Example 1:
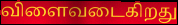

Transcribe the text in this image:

விளைவடைகிறது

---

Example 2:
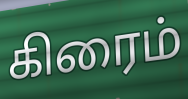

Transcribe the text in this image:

கிரைம்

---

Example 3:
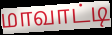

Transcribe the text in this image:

மாவாட்டி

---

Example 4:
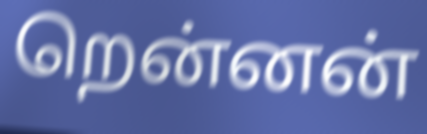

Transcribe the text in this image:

றென்னன்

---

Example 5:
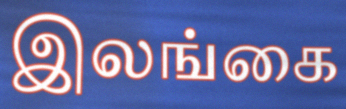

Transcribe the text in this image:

இலங்கை